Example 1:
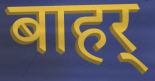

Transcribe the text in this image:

बाहर्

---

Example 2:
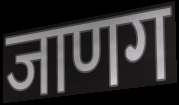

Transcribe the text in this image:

जाणग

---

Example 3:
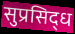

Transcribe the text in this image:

सुप्रसिद्ध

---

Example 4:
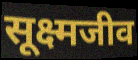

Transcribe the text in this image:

सूक्ष्मजीव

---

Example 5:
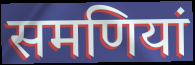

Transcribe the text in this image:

समणियां